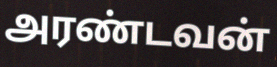
அரண்டவன்